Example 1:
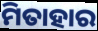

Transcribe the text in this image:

ମିତାହାର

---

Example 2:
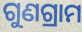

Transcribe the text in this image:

ଗୁଣଗ୍ରାମ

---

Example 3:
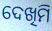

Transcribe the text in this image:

ଦେଖିମି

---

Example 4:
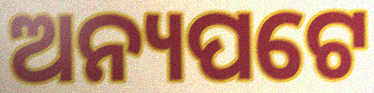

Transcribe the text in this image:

ଅନ୍ୟପଟେ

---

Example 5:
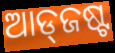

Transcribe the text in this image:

ଆଡ୍‌ଜଷ୍ଟ